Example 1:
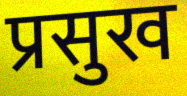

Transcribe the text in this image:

प्रसुख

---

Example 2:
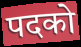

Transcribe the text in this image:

पदको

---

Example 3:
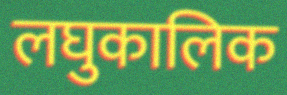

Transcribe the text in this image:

लघुकालिक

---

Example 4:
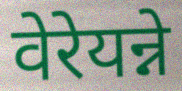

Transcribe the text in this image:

वेरेयन्ने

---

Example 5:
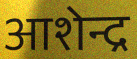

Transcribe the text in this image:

आशेन्द्र